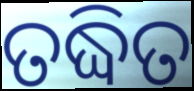
ତଦ୍ଧିତ